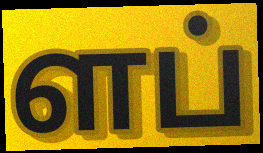
ளப்